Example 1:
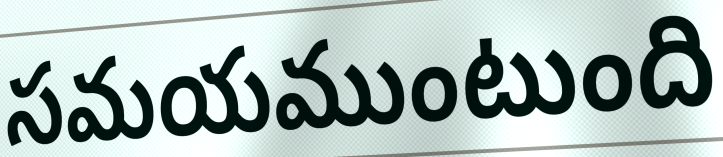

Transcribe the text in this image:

సమయముంటుంది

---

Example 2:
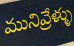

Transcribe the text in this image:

మునివ్రేళ్ళు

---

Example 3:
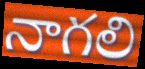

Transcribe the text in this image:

నాగలి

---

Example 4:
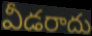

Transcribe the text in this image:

వీడరాదు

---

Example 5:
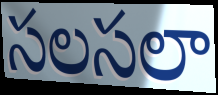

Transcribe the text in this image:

సలసలా